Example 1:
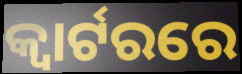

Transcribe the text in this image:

କ୍ଵାର୍ଟରରେ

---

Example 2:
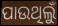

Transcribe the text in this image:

ପାଉଥିଲୁଁ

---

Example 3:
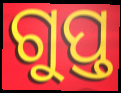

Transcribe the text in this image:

ଗୁପ୍ତ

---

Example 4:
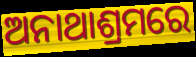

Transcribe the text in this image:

ଅନାଥାଶ୍ରମରେ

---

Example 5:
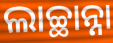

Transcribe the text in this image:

ଲାଚ୍ଛାନ୍ନା